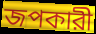
জপকারী